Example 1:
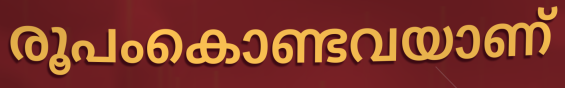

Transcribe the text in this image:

രൂപംകൊണ്ടവയാണ്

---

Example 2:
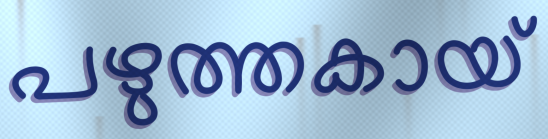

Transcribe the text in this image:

പഴുത്തകായ്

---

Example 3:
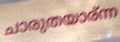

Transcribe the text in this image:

ചാരുതയാര്ന്ന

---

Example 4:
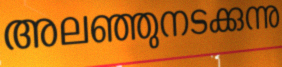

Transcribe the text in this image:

അലഞ്ഞുനടക്കുന്നു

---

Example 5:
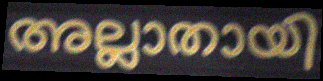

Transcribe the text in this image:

അല്ലാതായി